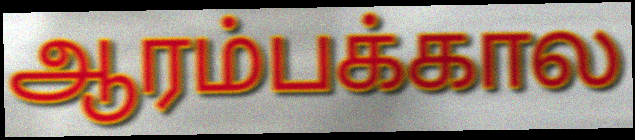
ஆரம்பக்கால